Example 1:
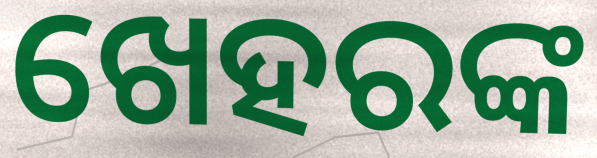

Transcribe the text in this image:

ଖେହରଙ୍କ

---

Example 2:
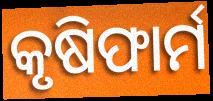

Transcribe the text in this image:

କୃଷିଫାର୍ମ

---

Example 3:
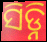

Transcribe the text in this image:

ସିଡ୍ନି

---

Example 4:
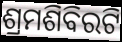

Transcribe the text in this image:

ଶ୍ରମଶିବିରଟି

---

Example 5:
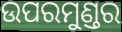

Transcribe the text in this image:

ଉପରମୁଣ୍ଡର